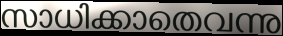
സാധിക്കാതെവന്നു